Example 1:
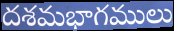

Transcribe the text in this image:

దశమభాగములు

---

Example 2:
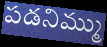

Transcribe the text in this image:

పడనిమ్ము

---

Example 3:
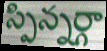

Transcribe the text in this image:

స్పిన్నర్గా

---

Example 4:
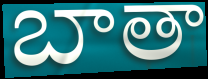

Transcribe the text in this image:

బాతా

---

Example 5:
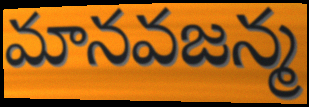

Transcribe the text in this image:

మానవజన్మ